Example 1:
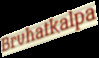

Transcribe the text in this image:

Bruhatkalpa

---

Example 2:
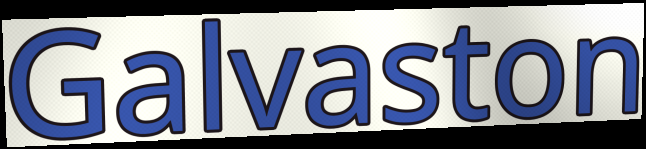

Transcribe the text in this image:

Galvaston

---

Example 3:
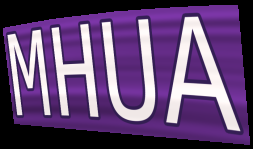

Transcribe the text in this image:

MHUA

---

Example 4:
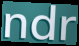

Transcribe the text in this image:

ndr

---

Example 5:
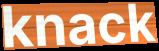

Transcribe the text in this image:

knack